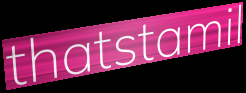
thatstamil